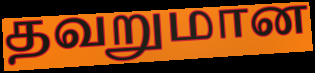
தவறுமான